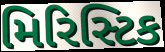
મિરિસ્ટિક